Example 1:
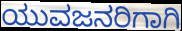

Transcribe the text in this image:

ಯುವಜನರಿಗಾಗಿ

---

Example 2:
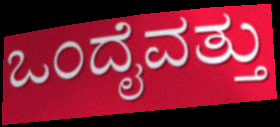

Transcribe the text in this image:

ಒಂದೈವತ್ತು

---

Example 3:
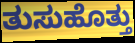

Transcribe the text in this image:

ತುಸುಹೊತ್ತು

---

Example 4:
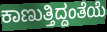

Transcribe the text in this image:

ಕಾಣುತ್ತಿದ್ದಂತೆಯೆ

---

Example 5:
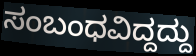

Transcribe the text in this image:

ಸಂಬಂಧವಿದ್ದದ್ದು